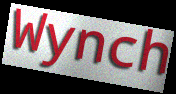
Wynch